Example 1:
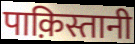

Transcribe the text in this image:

पाक़िस्तानी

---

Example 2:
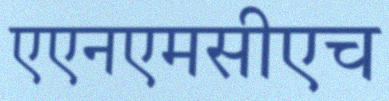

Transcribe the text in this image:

एएनएमसीएच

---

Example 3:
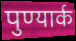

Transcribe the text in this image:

पुण्यार्क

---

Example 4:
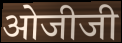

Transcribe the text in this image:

ओजीजी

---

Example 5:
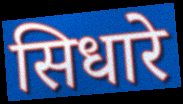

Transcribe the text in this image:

सिधारे